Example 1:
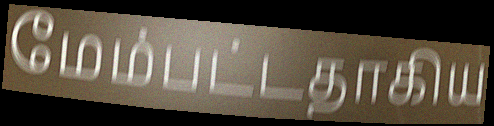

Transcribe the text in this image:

மேம்பட்டதாகிய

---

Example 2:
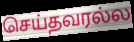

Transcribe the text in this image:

செய்தவரல்ல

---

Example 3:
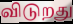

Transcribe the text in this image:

விடுறது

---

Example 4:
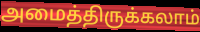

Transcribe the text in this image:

அமைத்திருக்கலாம்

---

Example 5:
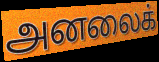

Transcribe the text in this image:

அனலைக்